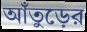
আঁতুড়ের